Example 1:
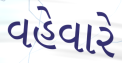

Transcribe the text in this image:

વહેવારે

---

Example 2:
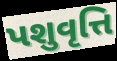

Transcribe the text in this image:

પશુવૃત્તિ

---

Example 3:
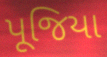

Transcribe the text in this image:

પૂજિયા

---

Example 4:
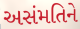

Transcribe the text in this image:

અસંમતિને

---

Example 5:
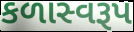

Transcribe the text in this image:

કળાસ્વરૂપ